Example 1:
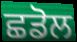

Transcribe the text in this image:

ਛਡੋਲ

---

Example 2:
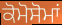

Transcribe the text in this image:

ਕੋਮੋਸੋਮਾਂ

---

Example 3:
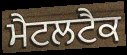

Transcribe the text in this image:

ਮੈਟਲਟੈਕ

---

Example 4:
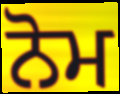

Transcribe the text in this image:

ਨੋਮ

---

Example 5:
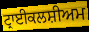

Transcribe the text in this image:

ਟ੍ਰਾਈਕਲਸ਼ੀਅਮ